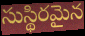
సుస్థిరమైన